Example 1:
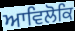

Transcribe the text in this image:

ਆਵਿਲੋਕਿ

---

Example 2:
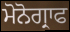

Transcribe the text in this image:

ਮੋਨੋਗ੍ਰਾਫ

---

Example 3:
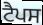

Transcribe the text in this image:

ਟੈਪਸ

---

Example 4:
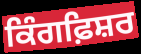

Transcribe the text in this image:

ਕਿੰਗਫ਼ਿਸ਼ਰ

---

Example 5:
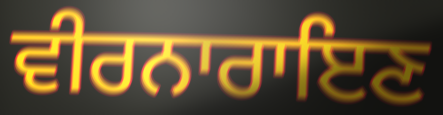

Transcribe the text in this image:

ਵੀਰਨਾਰਾਇਣ